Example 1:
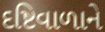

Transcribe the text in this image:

દષ્ટિવાળાને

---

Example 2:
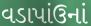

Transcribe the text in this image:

વડાપાંઉનાં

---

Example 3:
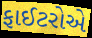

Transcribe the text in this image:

ફાઈટરોએ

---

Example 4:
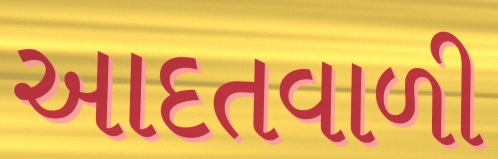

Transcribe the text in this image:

આદતવાળી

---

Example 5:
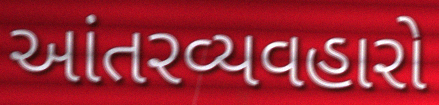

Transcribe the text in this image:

આંતરવ્યવહારો